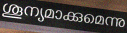
ശൂന്യമാക്കുമെന്നു